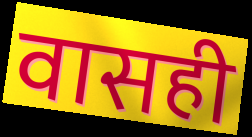
वासही